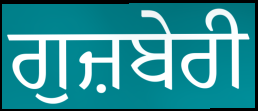
ਗੁਜ਼ਬੇਰੀ